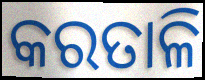
କରତାଳି